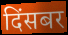
दिंसबर